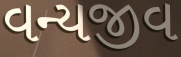
વન્યજીવ